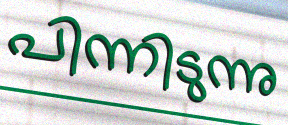
പിന്നിടുന്നു